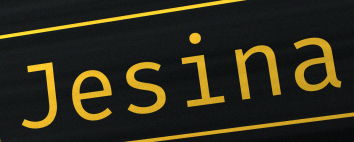
Jesina